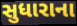
સુધારાના